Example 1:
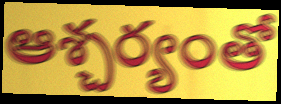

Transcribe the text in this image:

ఆశ్చర్యంతో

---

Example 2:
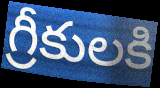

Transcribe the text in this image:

గ్రీకులకి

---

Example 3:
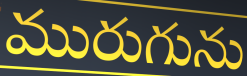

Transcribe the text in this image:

మురుగును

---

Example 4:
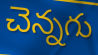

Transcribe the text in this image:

చెన్నగు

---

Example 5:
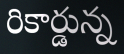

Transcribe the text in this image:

రికార్డున్న